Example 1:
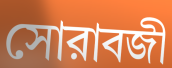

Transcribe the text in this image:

সোরাবজী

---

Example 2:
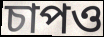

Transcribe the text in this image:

চাপও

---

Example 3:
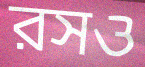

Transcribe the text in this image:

রসও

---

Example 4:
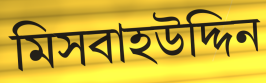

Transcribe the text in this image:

মিসবাহউদ্দিন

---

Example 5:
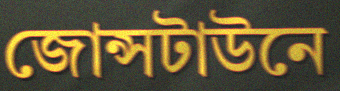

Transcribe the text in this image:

জোন্সটাউনে